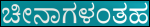
ಚೀನಾಗಳಂತಹ